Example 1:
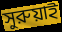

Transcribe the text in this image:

সুরুয়াই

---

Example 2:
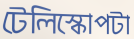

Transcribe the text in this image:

টেলিস্কোপটা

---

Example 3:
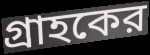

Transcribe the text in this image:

গ্রাহকের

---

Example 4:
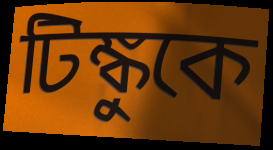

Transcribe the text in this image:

টিঙ্কুকে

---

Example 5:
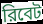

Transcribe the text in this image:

রিবেট